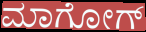
ಮಾಗೋಗ್